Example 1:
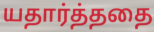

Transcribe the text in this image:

யதார்த்ததை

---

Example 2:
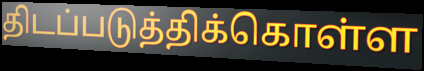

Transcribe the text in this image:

திடப்படுத்திக்கொள்ள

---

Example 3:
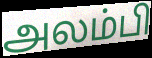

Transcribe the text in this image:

அலம்பி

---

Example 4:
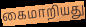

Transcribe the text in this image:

கைமாறியது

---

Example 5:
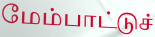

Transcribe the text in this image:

மேம்பாட்டுச்